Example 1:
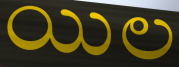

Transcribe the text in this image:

యిల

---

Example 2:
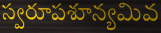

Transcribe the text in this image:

స్వరూపశూన్యమివ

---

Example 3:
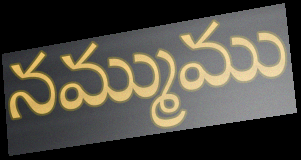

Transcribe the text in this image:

నమ్ముము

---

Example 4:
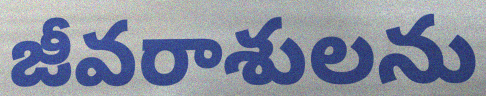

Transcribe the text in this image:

జీవరాశులను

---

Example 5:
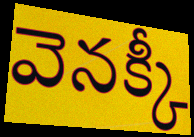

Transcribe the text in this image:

వెనక్కీ